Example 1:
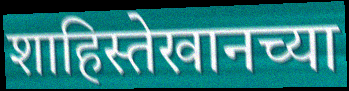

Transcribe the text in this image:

शाहिस्तेखानच्या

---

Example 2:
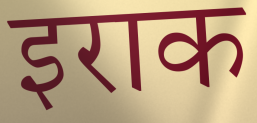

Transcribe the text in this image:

इराक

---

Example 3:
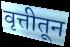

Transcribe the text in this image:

वृत्तीतून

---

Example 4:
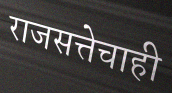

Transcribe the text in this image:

राजसत्तेचाही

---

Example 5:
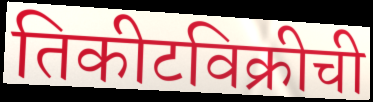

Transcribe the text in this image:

तिकीटविक्रीची